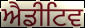
ਐਡੀਟਿਵ